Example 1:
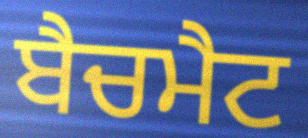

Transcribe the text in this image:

ਬੈਚਮੈਟ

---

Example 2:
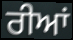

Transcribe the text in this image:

ਰੀਆਂ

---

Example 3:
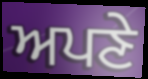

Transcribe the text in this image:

ਅਪਣੇ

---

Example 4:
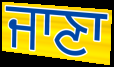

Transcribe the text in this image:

ਜਾਣਾ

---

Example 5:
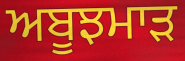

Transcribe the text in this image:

ਅਬੂਝਮਾੜ